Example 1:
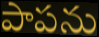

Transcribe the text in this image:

పాపను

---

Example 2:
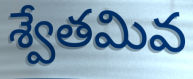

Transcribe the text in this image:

శ్వేతమివ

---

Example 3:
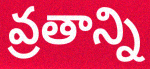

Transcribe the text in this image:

వ్రతాన్ని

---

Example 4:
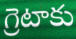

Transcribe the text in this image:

గ్రెటాకు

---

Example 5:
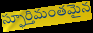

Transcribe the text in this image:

స్ఫూర్తిమంతమైన